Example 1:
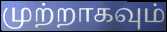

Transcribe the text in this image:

முற்றாகவும்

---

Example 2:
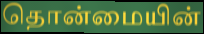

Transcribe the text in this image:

தொன்மையின்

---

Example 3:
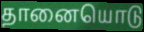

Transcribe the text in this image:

தானையொடு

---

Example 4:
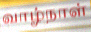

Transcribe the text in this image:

வாழ்நாள்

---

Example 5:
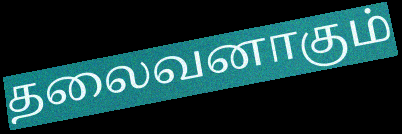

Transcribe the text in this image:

தலைவனாகும்